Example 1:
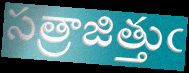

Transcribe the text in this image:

సత్రాజిత్తుఁ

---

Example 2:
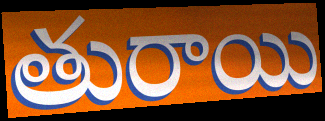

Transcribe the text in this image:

తురాయి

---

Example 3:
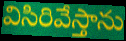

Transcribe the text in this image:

విసిరివేస్తాను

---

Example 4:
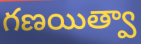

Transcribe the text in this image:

గణయిత్వా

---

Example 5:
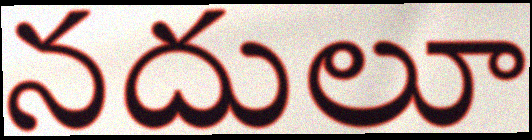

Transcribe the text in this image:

నదులూ